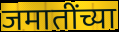
जमातींच्या